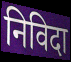
निविदा